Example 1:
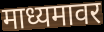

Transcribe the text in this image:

माध्यमावर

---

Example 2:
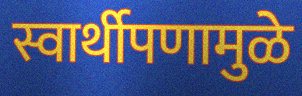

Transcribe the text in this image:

स्वार्थीपणामुळे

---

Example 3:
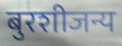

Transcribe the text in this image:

बुरशीजन्य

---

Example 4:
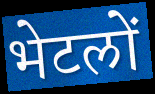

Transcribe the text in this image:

भेटलों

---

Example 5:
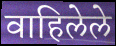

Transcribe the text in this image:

वाहिलेले